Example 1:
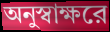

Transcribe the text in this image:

অনুস্বাক্ষরে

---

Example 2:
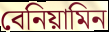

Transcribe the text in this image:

বেনিয়ামিন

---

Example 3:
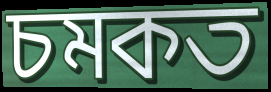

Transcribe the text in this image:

চমকত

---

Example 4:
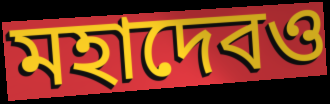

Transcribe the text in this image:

মহাদেবও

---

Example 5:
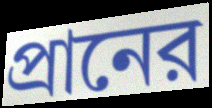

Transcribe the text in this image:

প্রানের